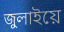
জুলাইয়ে